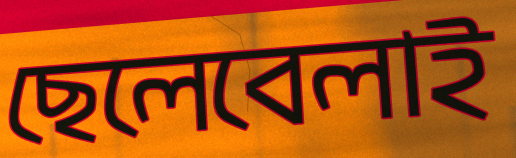
ছেলেবেলাই